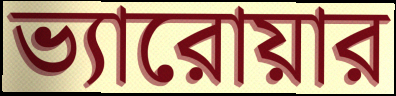
ভ্যারোয়ার